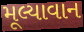
મૂલ્યાવાન